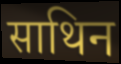
साथिन